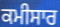
ਕਮੀਸਾਰ